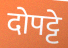
दोपट्टे